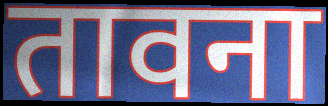
तावना